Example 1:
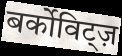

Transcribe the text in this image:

बर्कोविट्ज़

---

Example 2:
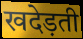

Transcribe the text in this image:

खदेड़ती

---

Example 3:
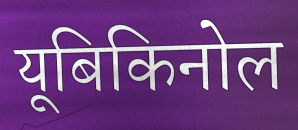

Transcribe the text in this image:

यूबिकिनोल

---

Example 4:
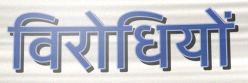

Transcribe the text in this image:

विरोधियों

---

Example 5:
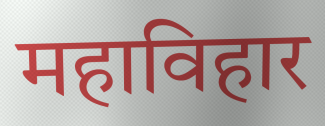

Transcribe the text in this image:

महाविहार